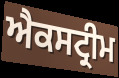
ਐਕਸਟ੍ਰੀਮ